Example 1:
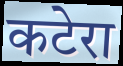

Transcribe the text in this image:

कटेरा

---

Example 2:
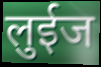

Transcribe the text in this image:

लुईज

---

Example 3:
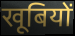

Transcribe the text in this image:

खूबियों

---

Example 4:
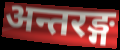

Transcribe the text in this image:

अन्तरङ्ग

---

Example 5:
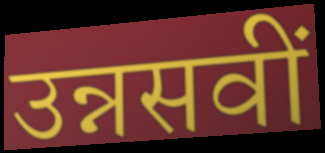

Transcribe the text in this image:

उन्नसवीं